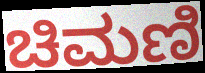
ಚಿಮಣಿ